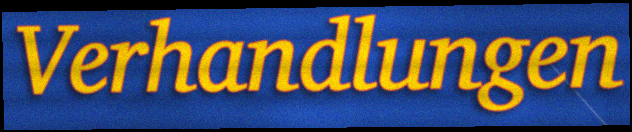
Verhandlungen